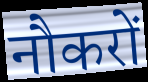
नौकरों